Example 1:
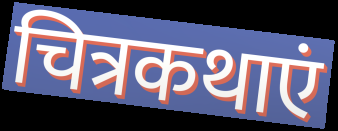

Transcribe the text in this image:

चित्रकथाएं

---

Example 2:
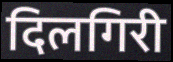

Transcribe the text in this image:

दिलगिरी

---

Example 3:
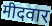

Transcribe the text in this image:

मीदवार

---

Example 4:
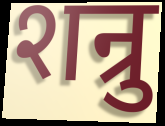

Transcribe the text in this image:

शन्रु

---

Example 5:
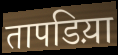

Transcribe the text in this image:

तापडिय़ा